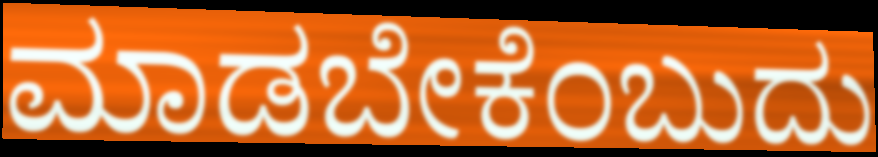
ಮಾಡಬೇಕೆಂಬುದು